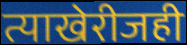
त्याखेरीजही